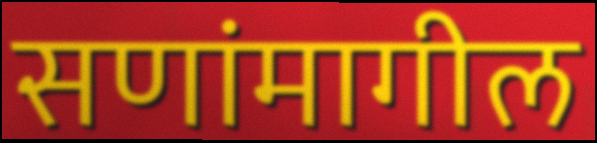
सणांमागील